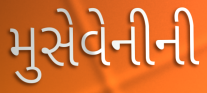
મુસેવેનીની